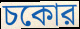
চকোর